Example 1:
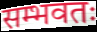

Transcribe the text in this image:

सम्भवतः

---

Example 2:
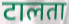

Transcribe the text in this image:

टालता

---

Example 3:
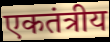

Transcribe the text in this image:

एकतंत्रीय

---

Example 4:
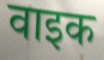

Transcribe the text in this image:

वाइक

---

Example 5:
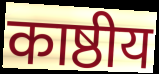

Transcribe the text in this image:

काष्ठीय